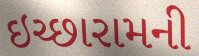
ઇચ્છારામની